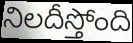
నిలదీస్తోంది